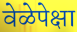
वेळेपेक्षा